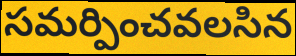
సమర్పించవలసిన